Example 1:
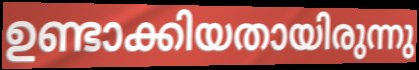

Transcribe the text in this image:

ഉണ്ടാക്കിയതായിരുന്നു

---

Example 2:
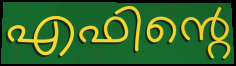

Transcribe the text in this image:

എഫിന്റെ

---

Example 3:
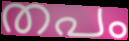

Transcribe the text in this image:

തപം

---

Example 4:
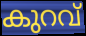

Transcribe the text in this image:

കുറവ്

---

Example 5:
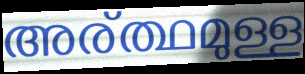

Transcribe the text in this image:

അര്ത്ഥമുള്ള